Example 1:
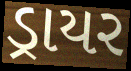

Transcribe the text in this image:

ડ્રાયર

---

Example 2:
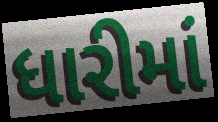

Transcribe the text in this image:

ધારીમાં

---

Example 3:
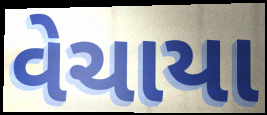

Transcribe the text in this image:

વેચાયા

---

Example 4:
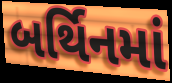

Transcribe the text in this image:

બર્થિનમાં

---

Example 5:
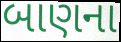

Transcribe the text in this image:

બાણના